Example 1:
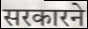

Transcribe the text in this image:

सरकारने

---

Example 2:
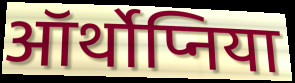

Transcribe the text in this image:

ऑर्थोप्निया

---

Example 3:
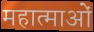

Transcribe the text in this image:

महात्माओं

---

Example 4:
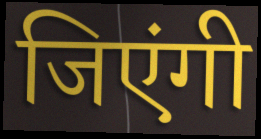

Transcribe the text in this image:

जिएंगी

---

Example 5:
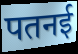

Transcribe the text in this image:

पतनई